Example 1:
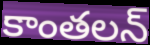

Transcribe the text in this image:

కాంతలన్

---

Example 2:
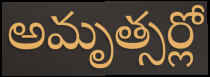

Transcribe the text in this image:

అమృత్సర్లో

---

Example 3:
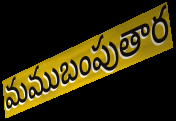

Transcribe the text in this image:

మముబంపుతార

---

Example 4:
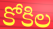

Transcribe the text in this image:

కోకిల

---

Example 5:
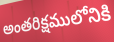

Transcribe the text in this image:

అంతరిక్షములోనికి